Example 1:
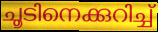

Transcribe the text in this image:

ചൂടിനെക്കുറിച്ച്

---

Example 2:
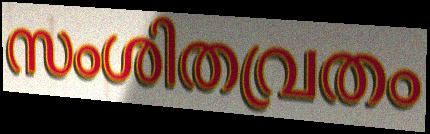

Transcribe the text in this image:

സംശിതവ്രതം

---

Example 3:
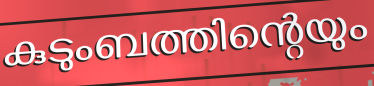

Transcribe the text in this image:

കുടുംബത്തിന്റെയും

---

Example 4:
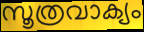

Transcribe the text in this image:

സൂത്രവാക്യം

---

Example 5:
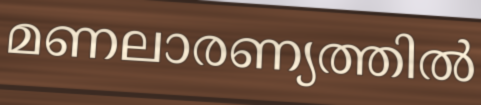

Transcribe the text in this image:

മണലാരണ്യത്തിൽ